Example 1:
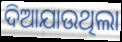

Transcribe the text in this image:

ଦିଆଯାଉଥିଲା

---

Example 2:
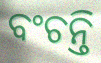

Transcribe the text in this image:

ବଂଚନ୍ତି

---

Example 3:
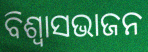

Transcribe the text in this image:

ବିଶ୍ଵାସଭାଜନ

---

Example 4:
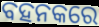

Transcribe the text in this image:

ବହନକରେ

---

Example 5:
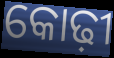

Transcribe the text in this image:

କୋଢ଼ୀ